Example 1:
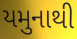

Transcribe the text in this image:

યમુનાથી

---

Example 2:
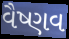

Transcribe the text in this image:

વૈષ્ણવ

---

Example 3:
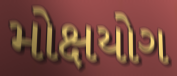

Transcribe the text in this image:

મોક્ષયોગ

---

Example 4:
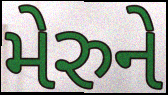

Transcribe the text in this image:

મેરુને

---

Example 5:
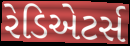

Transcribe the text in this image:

રેડિએટર્સ